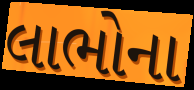
લાભોના